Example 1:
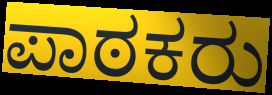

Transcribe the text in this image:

ಪಾಠಕರು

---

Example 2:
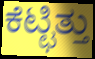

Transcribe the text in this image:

ಕೆಟ್ಟಿತ್ತು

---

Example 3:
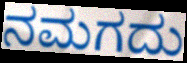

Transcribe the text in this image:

ನಮಗದು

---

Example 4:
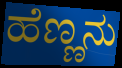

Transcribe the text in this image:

ಹೆಣ್ಣನು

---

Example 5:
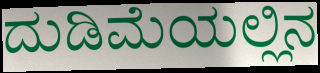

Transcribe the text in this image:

ದುಡಿಮೆಯಲ್ಲಿನ